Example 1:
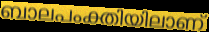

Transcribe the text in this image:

ബാലപംക്തിയിലാണ്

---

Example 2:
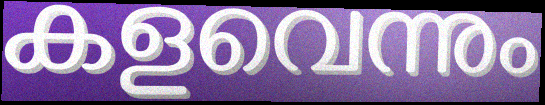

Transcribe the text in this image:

കളവെന്നും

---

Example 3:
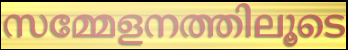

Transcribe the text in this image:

സമ്മേളനത്തിലൂടെ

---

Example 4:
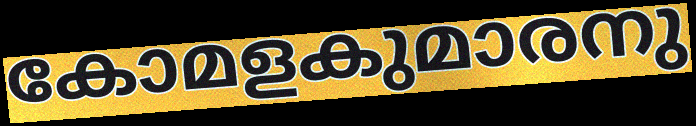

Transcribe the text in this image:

കോമളകുമാരനു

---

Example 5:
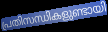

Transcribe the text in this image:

പ്രതിസന്ധികളുണ്ടായി